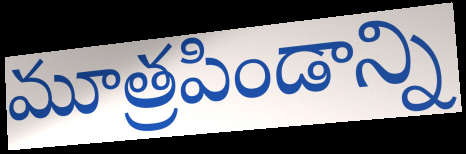
మూత్రపిండాన్ని